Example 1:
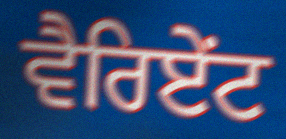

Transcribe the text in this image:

ਵੈਰਿਏਂਟ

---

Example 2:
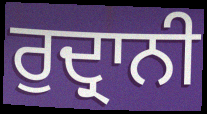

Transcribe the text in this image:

ਰੁਦ੍ਰਾਨੀ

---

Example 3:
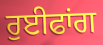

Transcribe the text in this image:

ਰੁਈਫਾਂਗ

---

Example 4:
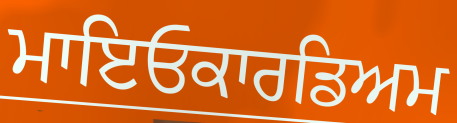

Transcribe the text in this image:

ਮਾਇਓਕਾਰਡਿਅਮ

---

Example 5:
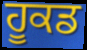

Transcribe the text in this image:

ਹੂਕਡ